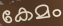
കേമം